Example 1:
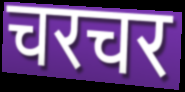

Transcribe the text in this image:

चरचर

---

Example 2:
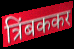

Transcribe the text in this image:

त्रिंबककर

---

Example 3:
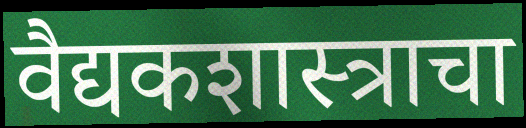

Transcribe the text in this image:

वैद्यकशास्त्राचा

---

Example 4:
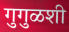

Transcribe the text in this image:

गुगुळशी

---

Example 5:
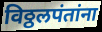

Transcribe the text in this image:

विठ्ठलपंतांना